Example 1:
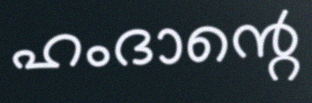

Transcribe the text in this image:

ഹംദാന്റെ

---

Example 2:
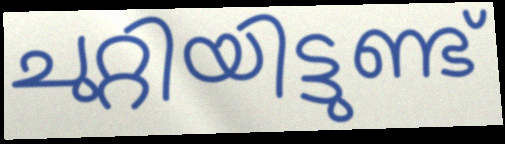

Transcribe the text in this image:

ചുറ്റിയിട്ടുണ്ട്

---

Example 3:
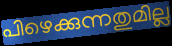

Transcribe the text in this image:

പിഴെക്കുന്നതുമില്ല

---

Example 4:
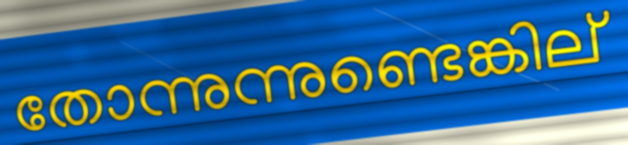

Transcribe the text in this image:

തോന്നുന്നുണ്ടെങ്കില്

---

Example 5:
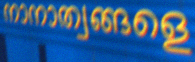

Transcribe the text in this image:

നാനാത്വങ്ങളെ